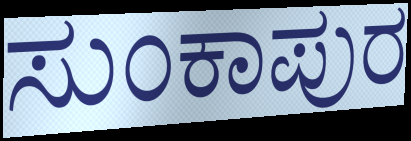
ಸುಂಕಾಪುರ